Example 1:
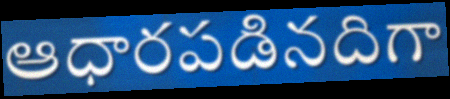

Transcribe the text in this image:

ఆధారపడినదిగా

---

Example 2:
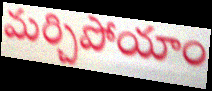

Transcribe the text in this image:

మర్చిపోయాం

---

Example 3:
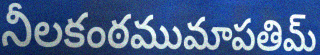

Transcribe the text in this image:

నీలకంఠముమాపతిమ్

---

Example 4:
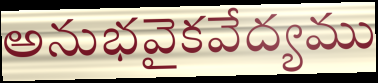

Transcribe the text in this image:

అనుభవైకవేద్యము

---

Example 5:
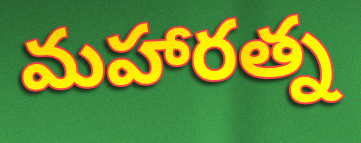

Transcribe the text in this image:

మహారత్న